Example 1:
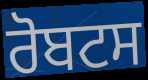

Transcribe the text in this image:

ਰੋਬਟਸ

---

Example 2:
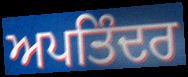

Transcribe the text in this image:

ਅਪਤਿੰਦਰ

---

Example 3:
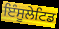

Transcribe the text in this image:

ਇੰਸੂਲੇਟਿਡ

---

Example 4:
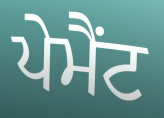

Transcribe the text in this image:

ਪੇਮੈਂਟ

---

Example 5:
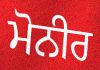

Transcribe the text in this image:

ਮੋਨੀਰ